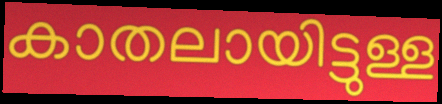
കാതലായിട്ടുള്ള